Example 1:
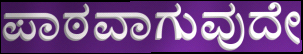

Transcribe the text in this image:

ಪಾಠವಾಗುವುದೇ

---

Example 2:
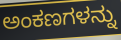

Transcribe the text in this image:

ಅಂಕಣಗಳನ್ನು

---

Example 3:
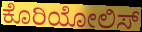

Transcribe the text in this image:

ಕೊರಿಯೋಲಿಸ್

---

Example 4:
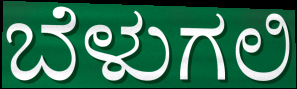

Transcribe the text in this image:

ಬೆಳುಗಲಿ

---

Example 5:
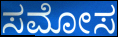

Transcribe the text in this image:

ಸಮೋಸ